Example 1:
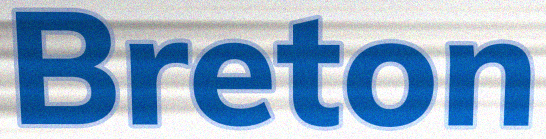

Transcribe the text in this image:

Breton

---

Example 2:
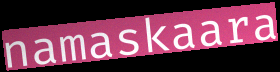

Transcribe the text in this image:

namaskaara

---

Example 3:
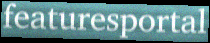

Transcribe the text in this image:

featuresportal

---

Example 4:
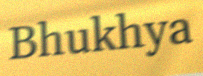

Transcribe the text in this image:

Bhukhya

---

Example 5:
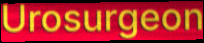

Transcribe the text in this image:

Urosurgeon